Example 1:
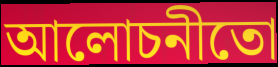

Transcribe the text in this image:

আলোচনীতো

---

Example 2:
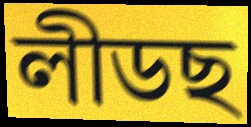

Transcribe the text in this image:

লীডছ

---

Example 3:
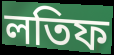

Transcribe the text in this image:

লতিফ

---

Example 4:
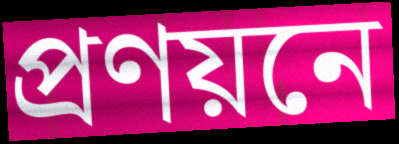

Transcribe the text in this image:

প্ৰণয়নে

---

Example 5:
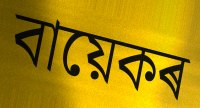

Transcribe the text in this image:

বায়েকৰ